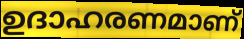
ഉദാഹരണമാണ്